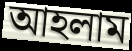
আহলাম